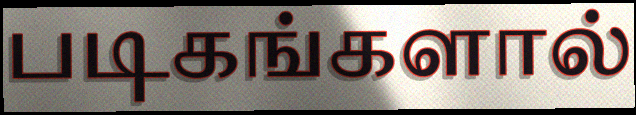
படிகங்களால்